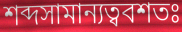
শব্দসামান্যত্ববশতঃ